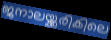
ജനാലയ്ക്കരികിലെ